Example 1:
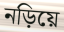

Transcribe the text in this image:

নড়িয়ে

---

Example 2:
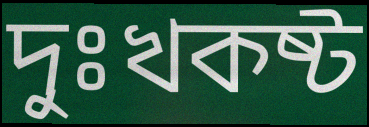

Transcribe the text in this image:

দুঃখকষ্ট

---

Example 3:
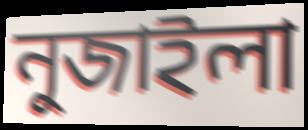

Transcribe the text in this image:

নুজাইলা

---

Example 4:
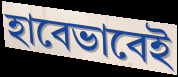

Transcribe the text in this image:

হাবেভাবেই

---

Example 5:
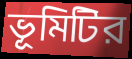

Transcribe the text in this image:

ভূমিটির